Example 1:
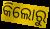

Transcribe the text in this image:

କିଲୋରୁ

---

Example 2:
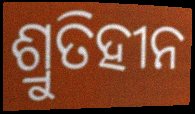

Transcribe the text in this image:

ଶ୍ରୁତିହୀନ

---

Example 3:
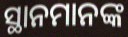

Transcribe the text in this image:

ସ୍ଥାନମାନଙ୍କ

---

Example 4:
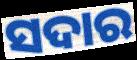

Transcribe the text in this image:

ସଦାର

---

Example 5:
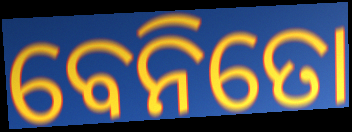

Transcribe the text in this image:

ବେନିତୋ